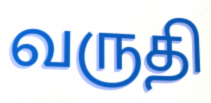
வருதி